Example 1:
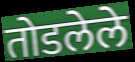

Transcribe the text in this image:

तोडलेले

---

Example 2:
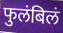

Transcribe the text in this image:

फुलंबिलं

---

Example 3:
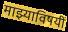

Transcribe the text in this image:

माझ्याविषयीं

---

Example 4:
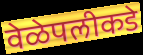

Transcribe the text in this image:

वेळेपलीकडे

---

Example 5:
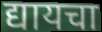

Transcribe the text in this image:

द्यायचा